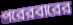
পরেরবারের